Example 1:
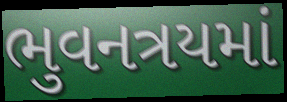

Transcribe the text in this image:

ભુવનત્રયમાં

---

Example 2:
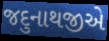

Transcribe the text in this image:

જદુનાથજીએ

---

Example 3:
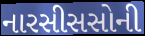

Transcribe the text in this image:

નારસીસસોની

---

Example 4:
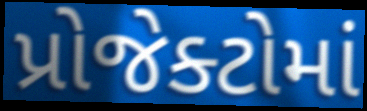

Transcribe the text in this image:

પ્રોજેક્ટોમાં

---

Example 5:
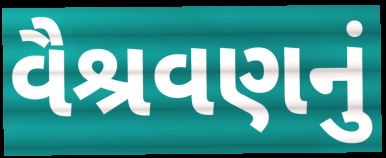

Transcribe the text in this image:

વૈશ્રવણનું